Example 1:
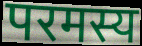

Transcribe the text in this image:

परमस्य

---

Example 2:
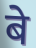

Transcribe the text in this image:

बे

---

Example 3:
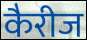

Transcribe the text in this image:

कैरीज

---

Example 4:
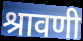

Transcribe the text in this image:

श्रावणी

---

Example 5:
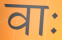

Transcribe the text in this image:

वाः